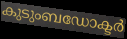
കുടുംബഡോക്ടർ